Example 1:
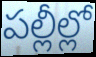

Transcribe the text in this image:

పల్లీల్లో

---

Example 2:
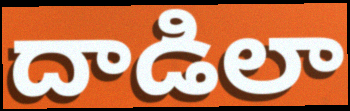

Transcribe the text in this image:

దాడిలా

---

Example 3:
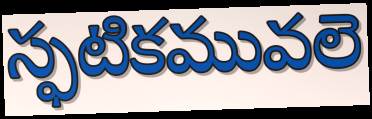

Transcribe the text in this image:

స్ఫటికమువలె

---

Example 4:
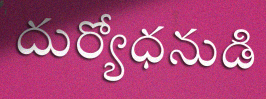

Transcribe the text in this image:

దుర్యోధనుడి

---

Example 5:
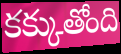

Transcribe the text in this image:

కక్కుతోంది